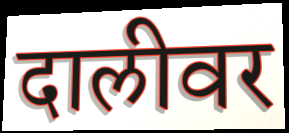
दालीवर